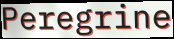
Peregrine